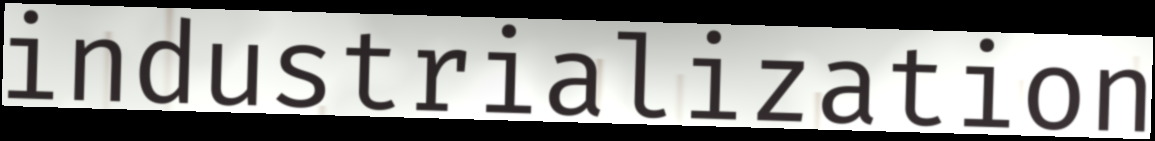
industrialization